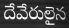
దేవేరులైన